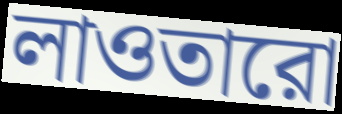
লাওতারো